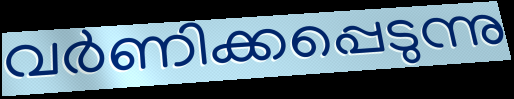
വർണിക്കപ്പെടുന്നു